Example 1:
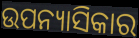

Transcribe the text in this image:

ଉପନ୍ୟାସିକାର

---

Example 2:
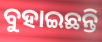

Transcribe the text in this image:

ବୁହାଇଛନ୍ତି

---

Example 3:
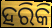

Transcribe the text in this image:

ହରିକି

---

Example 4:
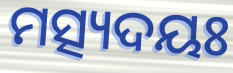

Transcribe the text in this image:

ମତ୍ସ୍ୟଦୟଃ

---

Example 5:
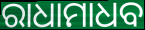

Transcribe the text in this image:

ରାଧାମାଧବ